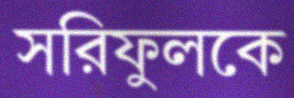
সরিফুলকে